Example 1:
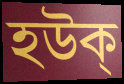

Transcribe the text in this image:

হউক্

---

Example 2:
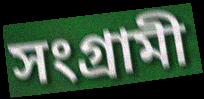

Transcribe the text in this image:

সংগ্রামী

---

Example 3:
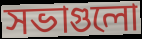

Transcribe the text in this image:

সভাগুলো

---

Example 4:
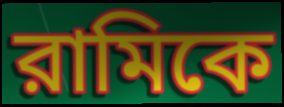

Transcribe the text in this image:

রামিকে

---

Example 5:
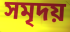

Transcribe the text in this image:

সমৃদয়